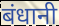
बंधानी